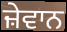
ਜ਼ੇਵਾਨ